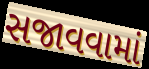
સજાવવામાં